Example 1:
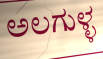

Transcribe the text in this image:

ಅಲಗುಳ್ಳ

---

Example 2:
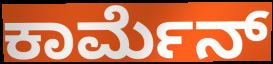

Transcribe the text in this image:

ಕಾರ್ಮೆನ್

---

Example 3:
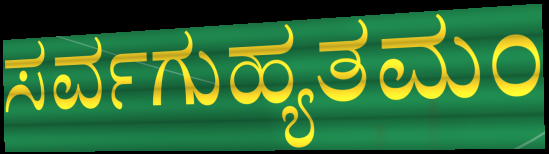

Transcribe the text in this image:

ಸರ್ವಗುಹ್ಯತಮಂ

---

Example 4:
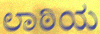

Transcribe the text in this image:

ಲಾಠಿಯ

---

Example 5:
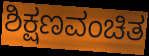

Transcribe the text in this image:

ಶಿಕ್ಷಣವಂಚಿತ